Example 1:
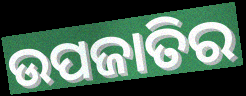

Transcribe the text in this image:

ଉପଜାତିର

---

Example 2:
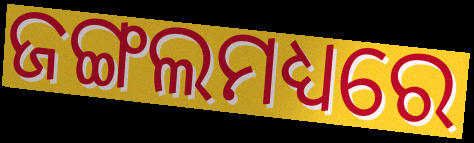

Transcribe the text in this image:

ଜଙ୍ଗଲମଧ୍ୟରେ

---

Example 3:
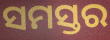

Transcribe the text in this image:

ସମସ୍ତର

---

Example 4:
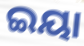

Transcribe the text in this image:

ଇୟା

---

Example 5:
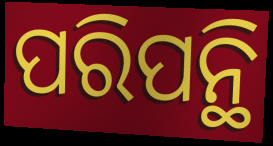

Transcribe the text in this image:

ପରିପନ୍ଥି